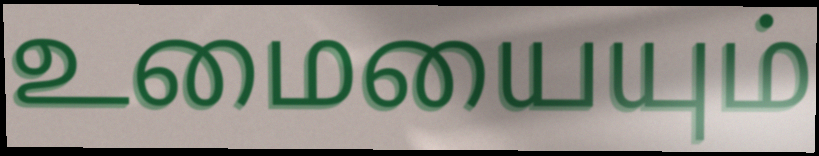
உமையையும்